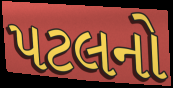
પટલનો